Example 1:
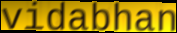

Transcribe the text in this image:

vidabhan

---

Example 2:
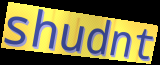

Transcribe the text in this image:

shudnt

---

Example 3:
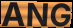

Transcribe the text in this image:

ANG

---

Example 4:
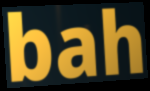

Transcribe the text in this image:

bah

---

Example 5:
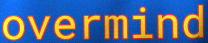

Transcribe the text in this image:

overmind